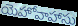
యెహోవాహాసు